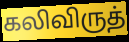
கலிவிருத்